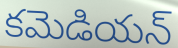
కమెడియన్